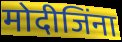
मोदीजिंना